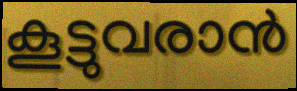
കൂട്ടുവരാൻ